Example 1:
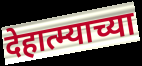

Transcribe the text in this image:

देहात्म्याच्या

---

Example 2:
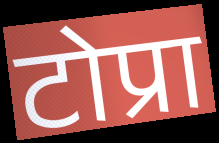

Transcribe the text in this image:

टोप्रा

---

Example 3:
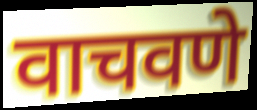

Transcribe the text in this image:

वाचवणे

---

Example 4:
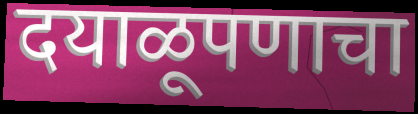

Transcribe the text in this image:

दयाळूपणाचा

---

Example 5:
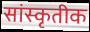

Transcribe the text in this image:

सांस्कृतीक